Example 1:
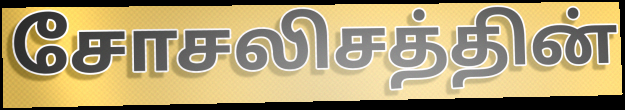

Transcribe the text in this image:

சோசலிசத்தின்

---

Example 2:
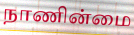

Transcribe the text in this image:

நாணின்மை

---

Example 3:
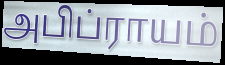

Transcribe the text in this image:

அபிப்ராயம்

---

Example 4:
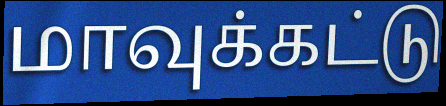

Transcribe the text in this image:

மாவுக்கட்டு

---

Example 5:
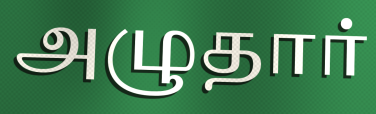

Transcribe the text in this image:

அழுதார்